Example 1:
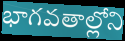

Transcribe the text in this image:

భాగవతాల్లోని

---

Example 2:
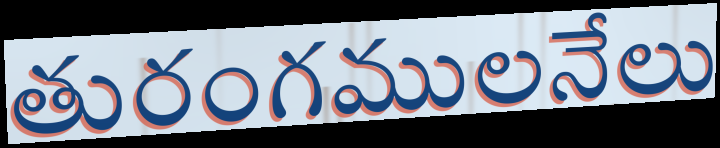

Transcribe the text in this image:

తురంగములనేలు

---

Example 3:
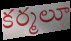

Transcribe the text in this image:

కర్మలూ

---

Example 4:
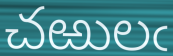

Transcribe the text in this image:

చఱులఁ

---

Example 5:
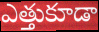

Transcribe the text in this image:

ఎత్తుకూడా